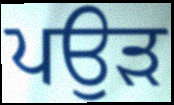
ਪਉੜ